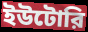
ইউটোরি